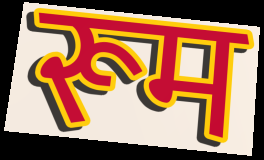
रूम